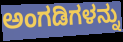
ಅಂಗಡಿಗಳನ್ನು